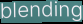
blending